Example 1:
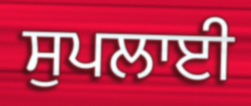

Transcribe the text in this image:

ਸੁਪਲਾਈ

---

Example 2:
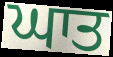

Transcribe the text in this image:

ਘਾਤ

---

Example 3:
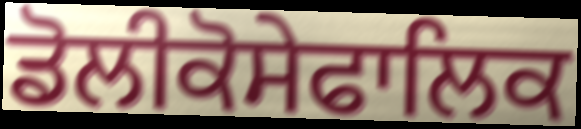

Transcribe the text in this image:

ਡੋਲੀਕੋਸੇਫਾਲਿਕ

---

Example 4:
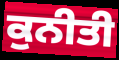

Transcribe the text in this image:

ਕੁਨੀਤੀ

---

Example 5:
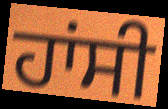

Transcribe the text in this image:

ਹਾਂਸੀ